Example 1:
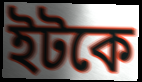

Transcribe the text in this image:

ইটকে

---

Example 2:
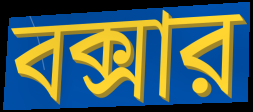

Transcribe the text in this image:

বক্সার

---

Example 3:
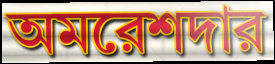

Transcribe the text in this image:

অমরেশদার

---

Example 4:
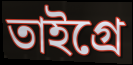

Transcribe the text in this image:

তাইগ্রে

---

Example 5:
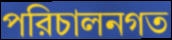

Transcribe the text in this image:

পরিচালনগত